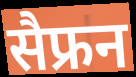
सैफ्रन